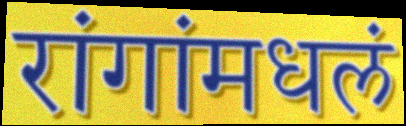
रांगांमधलं